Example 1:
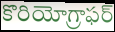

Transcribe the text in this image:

కొరియోగ్రాఫర్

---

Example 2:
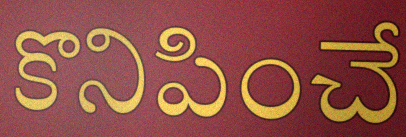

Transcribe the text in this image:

కొనిపించే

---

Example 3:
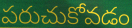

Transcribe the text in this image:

పరుచుకోవడం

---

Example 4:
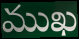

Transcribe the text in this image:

ముఖ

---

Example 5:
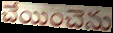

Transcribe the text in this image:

చేయించెను